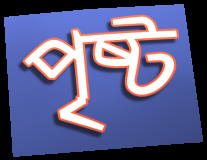
পৃষ্ট